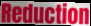
Reduction